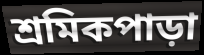
শ্রমিকপাড়া